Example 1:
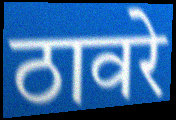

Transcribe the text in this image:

ठावरे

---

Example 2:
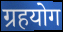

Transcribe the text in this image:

ग्रहयोग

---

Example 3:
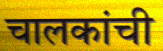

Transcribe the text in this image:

चालकांची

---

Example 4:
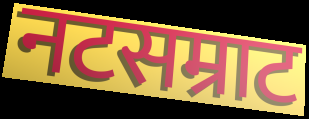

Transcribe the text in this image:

नटसम्राट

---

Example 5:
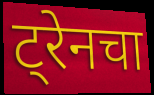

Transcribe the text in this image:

ट्रेनचा